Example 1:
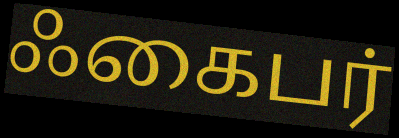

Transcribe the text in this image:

ஃகைபர்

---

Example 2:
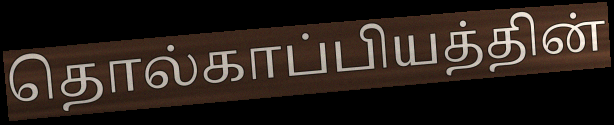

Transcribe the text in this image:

தொல்காப்பியத்தின்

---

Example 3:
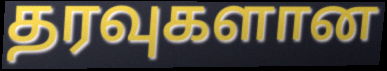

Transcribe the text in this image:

தரவுகளான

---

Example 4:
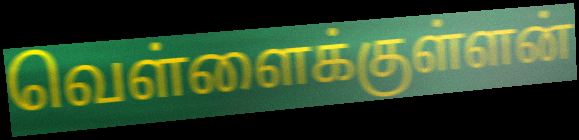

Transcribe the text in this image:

வெள்ளைக்குள்ளன்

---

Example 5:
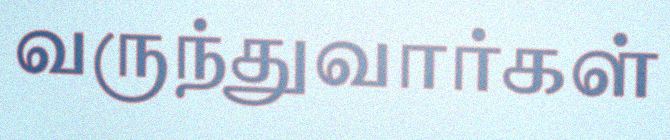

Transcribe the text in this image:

வருந்துவார்கள்